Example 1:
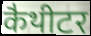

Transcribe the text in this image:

कैथीटर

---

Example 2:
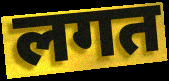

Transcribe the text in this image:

लगत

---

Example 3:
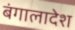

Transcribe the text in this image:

बंगालादेश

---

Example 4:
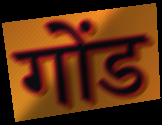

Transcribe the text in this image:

गोंड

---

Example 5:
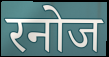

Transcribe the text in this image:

रनोज